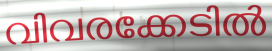
വിവരക്കേടിൽ